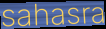
sahasra